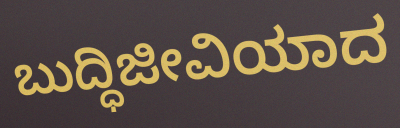
ಬುದ್ಧಿಜೀವಿಯಾದ